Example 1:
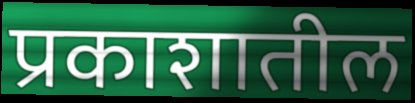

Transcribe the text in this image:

प्रकाशातील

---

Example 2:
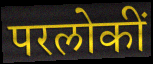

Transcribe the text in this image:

परलोकीं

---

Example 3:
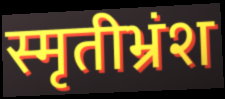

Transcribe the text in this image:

स्मृतीभ्रंश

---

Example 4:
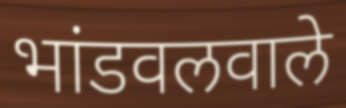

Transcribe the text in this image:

भांडवलवाले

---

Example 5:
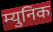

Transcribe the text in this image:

म्युनिक